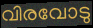
വിരവോടു